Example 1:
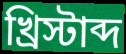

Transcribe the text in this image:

খ্রিস্টাব্দ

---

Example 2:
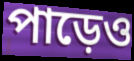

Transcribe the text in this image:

পাড়েও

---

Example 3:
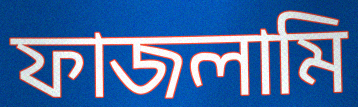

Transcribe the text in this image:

ফাজলামি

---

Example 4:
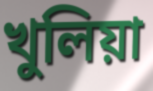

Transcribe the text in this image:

খুলিয়া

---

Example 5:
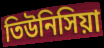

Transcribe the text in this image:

তিউনিসিয়া